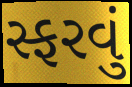
સ્ફરવું